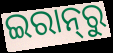
ଇରାନ୍‌ରୁ